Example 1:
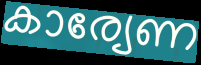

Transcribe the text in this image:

കാര്യേണ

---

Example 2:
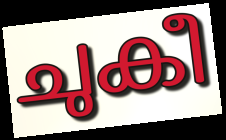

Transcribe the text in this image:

ചുകീ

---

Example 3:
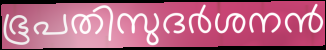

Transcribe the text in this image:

ഭൂപതിസുദർശനൻ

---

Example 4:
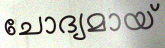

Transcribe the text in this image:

ചോദ്യമായ്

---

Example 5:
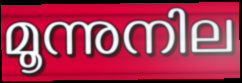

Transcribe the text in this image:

മൂന്നുനില